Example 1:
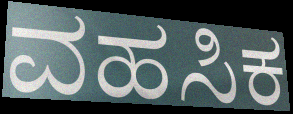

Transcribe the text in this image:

ವಹಸಿಕ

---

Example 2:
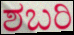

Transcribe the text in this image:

ಶಬರಿ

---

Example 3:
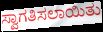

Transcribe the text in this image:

ಸ್ವಾಗತಿಸಲಾಯಿತು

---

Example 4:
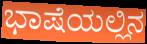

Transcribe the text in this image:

ಭಾಷೆಯಲ್ಲಿನ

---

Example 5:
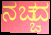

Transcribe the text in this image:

ನಚ್ಚದ